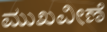
ಮುಖವೀಣೆ